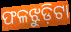
ଫଳଝୁଡ଼ିଟା